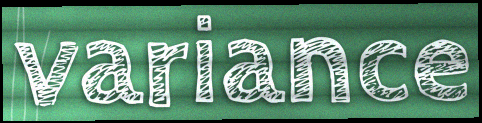
variance